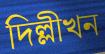
দিল্লীখন